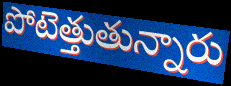
పోటెత్తుతున్నారు